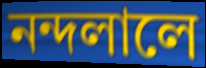
নন্দলালে